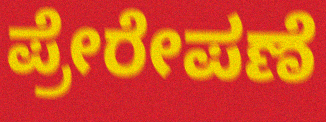
ಪ್ರೇರೇಪಣೆ